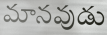
మానవుడు